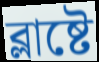
ব্লাষ্টে